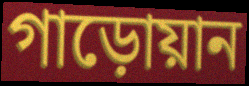
গাড়োয়ান